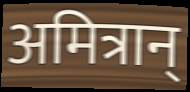
अमित्रान्